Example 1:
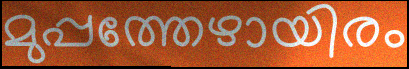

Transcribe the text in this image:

മുപ്പത്തേഴായിരം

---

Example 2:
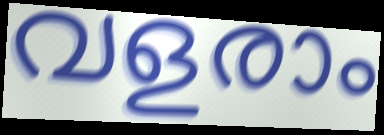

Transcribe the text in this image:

വളരാം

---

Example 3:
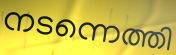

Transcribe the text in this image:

നടന്നെത്തി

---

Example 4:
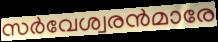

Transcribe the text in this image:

സർവേശ്വരൻമാരേ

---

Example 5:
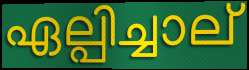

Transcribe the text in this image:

ഏല്പിച്ചാല്